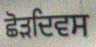
ਛੋੜਦਿਵਸ